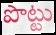
పొట్టు